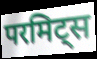
परमिट्स